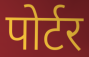
पोर्टर